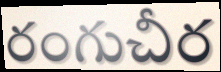
రంగుచీర